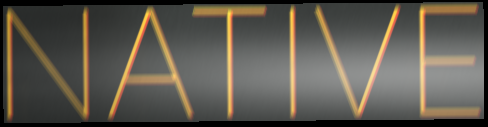
NATIVE